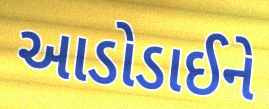
આડોડાઈને